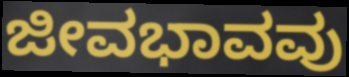
ಜೀವಭಾವವು